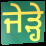
ਜੇੜ੍ਹੇ